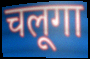
चलूगा